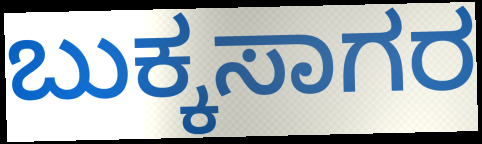
ಬುಕ್ಕಸಾಗರ